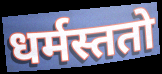
धर्मस्ततो